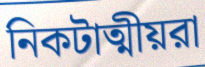
নিকটাত্মীয়রা